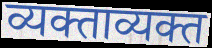
व्यक्ताव्यक्त